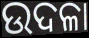
ଉଦଳା